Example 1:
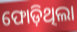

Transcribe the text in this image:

ଫୋଡ଼ିଥିଲା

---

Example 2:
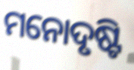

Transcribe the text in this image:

ମନୋଦୃଷ୍ଟି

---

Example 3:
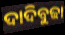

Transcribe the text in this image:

ଦାଦିବୁଢା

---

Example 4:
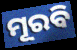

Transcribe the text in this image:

ମୂରବି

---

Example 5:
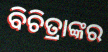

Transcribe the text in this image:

ବିଚିତ୍ରାଙ୍କର